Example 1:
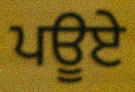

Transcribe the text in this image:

ਪਊਏ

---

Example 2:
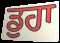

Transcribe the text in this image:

ਡੁਹਾ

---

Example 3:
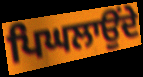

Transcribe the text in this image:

ਪਿਘਲਾਉਂਦੇ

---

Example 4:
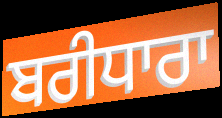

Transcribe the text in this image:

ਬਰੀਧਾਰਾ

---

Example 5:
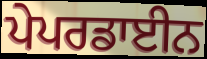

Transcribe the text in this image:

ਪੇਪਰਡਾਈਨ